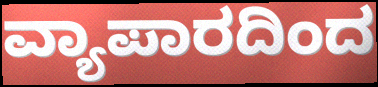
ವ್ಯಾಪಾರದಿಂದ